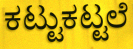
ಕಟ್ಟುಕಟ್ಟಲೆ